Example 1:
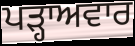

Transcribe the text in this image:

ਪੜ੍ਹਾਅਵਾਰ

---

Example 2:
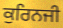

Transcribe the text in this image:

ਕੁਰਿਨਜੀ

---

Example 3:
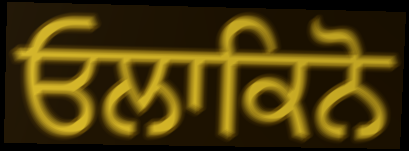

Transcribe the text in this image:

ਓਲਾਕਿਨੋ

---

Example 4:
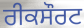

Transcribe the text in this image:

ਰੀਕਸੌਰਟ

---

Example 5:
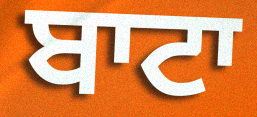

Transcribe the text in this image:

ਬਾਟਾ